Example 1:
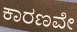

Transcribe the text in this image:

ಕಾರಣವೇ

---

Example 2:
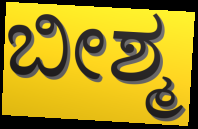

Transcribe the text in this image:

ಬೀಶ್ಮ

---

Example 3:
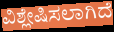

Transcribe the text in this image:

ವಿಶ್ಲೇಷಿಸಲಾಗಿದೆ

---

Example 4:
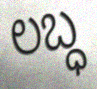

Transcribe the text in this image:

ಲಬ್ಧ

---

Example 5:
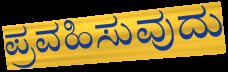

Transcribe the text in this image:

ಪ್ರವಹಿಸುವುದು